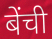
बेंची